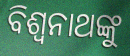
ବିଶ୍ବନାଥଙ୍କୁ